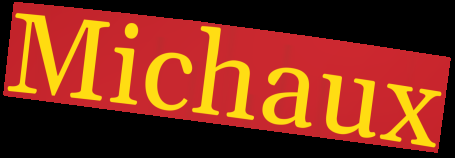
Michaux